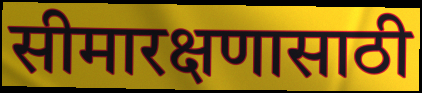
सीमारक्षणासाठी